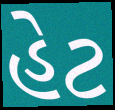
હેટ